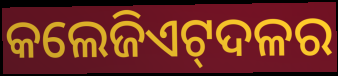
କଲେଜିଏଟ୍‍ଦଳର